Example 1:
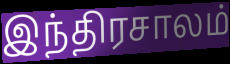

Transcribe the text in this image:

இந்திரசாலம்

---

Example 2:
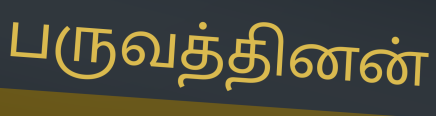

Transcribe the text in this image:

பருவத்தினன்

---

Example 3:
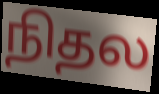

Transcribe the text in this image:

நிதல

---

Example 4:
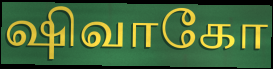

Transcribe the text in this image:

ஷிவாகோ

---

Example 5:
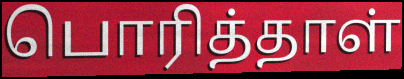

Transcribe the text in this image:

பொரித்தாள்